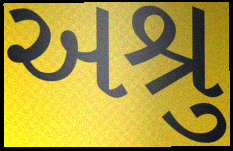
અશ્રુ